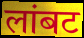
लांबट